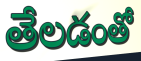
తేలడంతో